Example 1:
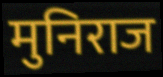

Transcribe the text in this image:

मुनिराज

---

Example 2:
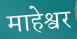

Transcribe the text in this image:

माहेश्वर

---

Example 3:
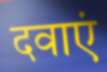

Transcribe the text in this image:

दवाएं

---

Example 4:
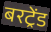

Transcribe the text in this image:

बरट्रेंड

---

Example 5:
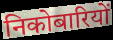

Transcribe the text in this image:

निकोबारियों